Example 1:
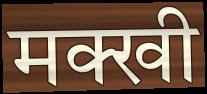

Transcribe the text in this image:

मक्खी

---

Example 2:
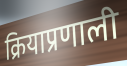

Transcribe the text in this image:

क्रियाप्रणाली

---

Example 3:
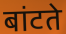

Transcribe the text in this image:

बांटते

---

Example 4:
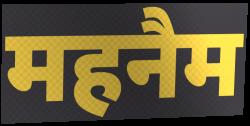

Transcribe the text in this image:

महनैम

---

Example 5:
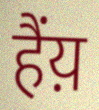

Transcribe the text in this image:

हैंय़